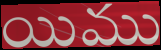
యిము